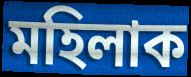
মহিলাক